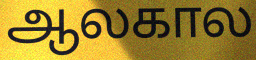
ஆலகால